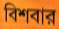
বিশবার